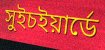
সুইচইয়ার্ডে